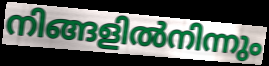
നിങ്ങളിൽനിന്നും